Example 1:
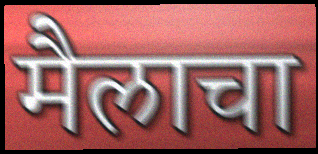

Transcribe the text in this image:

मैलाचा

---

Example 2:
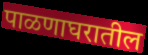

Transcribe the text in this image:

पाळणाघरातील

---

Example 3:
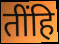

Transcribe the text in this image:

तींहि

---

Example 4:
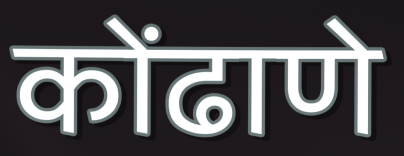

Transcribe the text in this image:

कोंढाणे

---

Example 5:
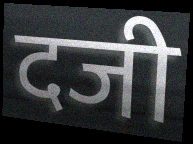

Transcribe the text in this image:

दजी